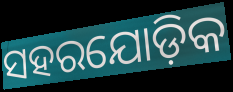
ସହରଯୋଡ଼ିକ